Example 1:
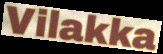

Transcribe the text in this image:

Vilakka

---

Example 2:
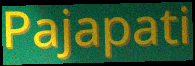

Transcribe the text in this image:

Pajapati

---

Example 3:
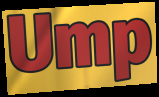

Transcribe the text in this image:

Ump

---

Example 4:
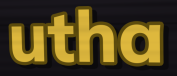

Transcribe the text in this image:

utha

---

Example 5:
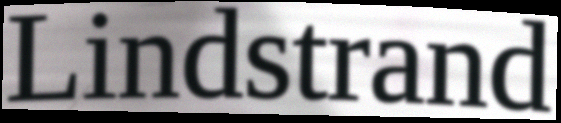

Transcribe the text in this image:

Lindstrand